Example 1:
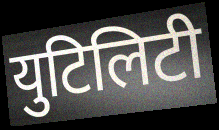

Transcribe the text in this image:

युटिलिटी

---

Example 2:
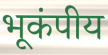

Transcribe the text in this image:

भूकंपीय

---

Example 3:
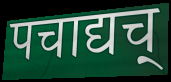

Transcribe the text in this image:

पचाद्यच्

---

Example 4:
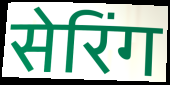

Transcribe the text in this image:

सेरिंग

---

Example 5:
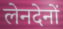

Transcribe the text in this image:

लेनदेनों